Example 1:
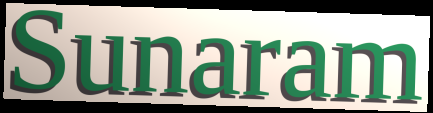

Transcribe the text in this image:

Sunaram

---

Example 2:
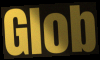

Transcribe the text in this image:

Glob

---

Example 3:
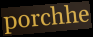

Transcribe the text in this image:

porchhe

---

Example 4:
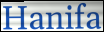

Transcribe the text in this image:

Hanifa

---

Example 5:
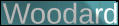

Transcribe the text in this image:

Woodard